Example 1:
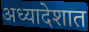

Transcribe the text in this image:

अध्यादेशात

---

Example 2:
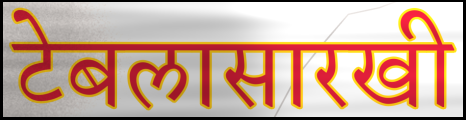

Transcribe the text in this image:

टेबलासारखी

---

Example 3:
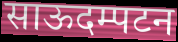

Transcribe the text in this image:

साऊदम्पटन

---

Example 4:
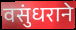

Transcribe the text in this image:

वसुंधराने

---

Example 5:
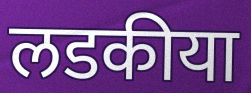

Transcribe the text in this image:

लडकीया